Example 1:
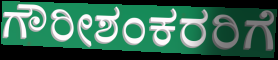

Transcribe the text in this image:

ಗೌರೀಶಂಕರರಿಗೆ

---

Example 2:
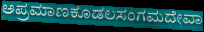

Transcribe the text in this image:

ಅಪ್ರಮಾಣಕೂಡಲಸಂಗಮದೇವಾ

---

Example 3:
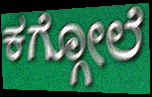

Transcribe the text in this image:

ಕಗ್ಗೋಲೆ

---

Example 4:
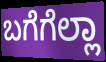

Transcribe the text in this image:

ಬಗೆಗೆಲ್ಲಾ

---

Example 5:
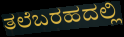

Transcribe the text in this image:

ತಲೆಬರಹದಲ್ಲಿ